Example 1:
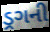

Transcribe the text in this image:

ડ્રગની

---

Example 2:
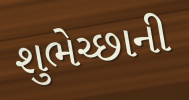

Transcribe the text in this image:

શુભેચ્છાની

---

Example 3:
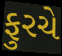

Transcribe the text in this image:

ફુરચે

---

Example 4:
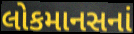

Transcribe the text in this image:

લોકમાનસનાં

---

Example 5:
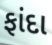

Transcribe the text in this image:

ફાંદા